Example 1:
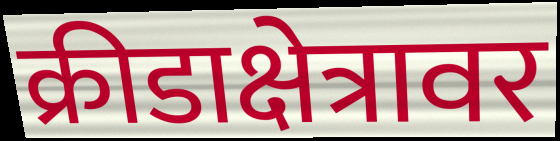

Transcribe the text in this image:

क्रीडाक्षेत्रावर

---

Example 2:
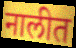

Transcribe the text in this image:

नालीत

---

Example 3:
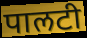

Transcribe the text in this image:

पालटी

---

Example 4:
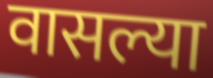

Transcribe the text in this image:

वासल्या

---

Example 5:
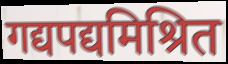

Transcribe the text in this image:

गद्यपद्यमिश्रित